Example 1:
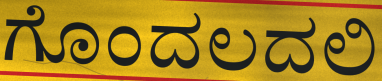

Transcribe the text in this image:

ಗೊಂದಲದಲಿ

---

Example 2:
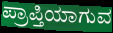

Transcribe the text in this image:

ಪ್ರಾಪ್ತಿಯಾಗುವ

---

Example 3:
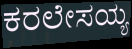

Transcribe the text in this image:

ಕರಲೇಸಯ್ಯ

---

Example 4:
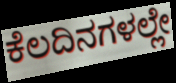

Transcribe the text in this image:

ಕೆಲದಿನಗಳಲ್ಲೇ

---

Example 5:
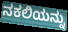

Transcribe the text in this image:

ನಕಲಿಯನ್ನು